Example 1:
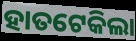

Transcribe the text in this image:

ହାତଟେକିଲା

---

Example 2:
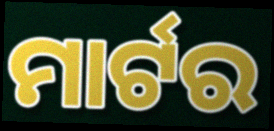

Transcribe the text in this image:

ମାର୍ଟର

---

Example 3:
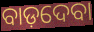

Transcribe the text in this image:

ବାଡ଼ଦେବା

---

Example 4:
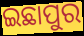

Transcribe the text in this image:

ଇଛାପୁର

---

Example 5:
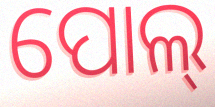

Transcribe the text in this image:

ପୋଲ୍